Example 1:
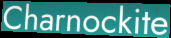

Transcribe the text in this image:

Charnockite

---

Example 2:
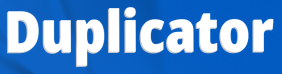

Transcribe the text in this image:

Duplicator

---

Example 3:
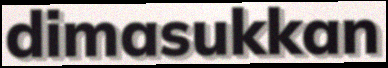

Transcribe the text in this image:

dimasukkan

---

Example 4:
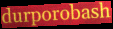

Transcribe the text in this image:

durporobash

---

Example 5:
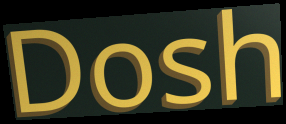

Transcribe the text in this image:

Dosh